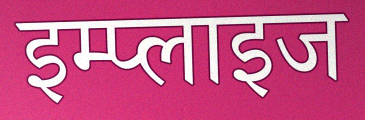
इम्प्लाइज